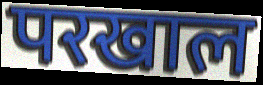
परखाल